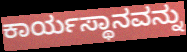
ಕಾರ್ಯಸ್ಥಾನವನ್ನು